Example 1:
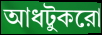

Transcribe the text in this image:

আধটুকরো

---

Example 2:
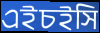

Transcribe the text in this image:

এইচইসি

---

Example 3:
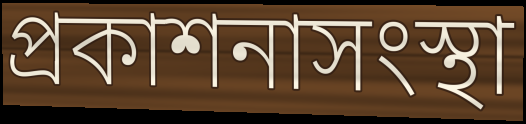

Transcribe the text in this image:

প্রকাশনাসংস্থা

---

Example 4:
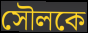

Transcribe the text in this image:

সৌলকে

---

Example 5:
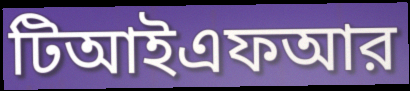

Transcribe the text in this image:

টিআইএফআর